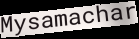
Mysamachar